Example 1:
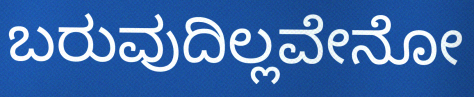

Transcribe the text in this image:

ಬರುವುದಿಲ್ಲವೇನೋ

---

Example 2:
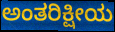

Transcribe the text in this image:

ಅಂತರಿಕ್ಷೀಯ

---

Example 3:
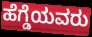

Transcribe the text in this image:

ಹೆಗ್ಡೆಯವರು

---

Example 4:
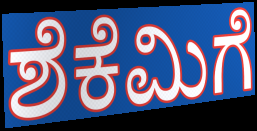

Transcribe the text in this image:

ಶೆಕೆಮಿಗೆ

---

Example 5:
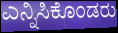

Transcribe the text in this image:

ಎನ್ನಿಸಿಕೊಂಡರು